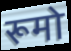
रूमो